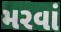
મરવાં